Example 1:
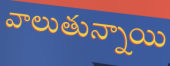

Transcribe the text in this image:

వాలుతున్నాయి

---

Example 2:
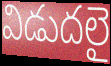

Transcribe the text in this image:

విడుదలై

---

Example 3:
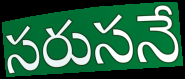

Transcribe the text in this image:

సరుసనే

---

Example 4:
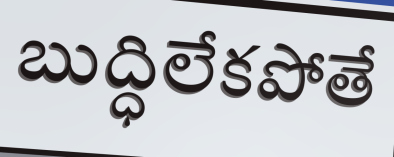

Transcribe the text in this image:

బుద్ధిలేకపోతే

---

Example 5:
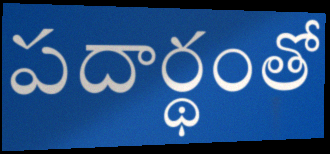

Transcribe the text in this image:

పదార్థంతో